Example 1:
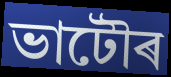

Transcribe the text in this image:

ভাটৌৰ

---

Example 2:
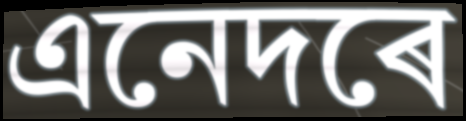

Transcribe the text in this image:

এনেদৰে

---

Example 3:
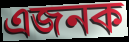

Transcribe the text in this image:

এজনক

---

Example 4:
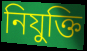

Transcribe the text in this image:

নিযুক্তি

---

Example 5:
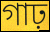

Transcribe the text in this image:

গাঢ়